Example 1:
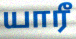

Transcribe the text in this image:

யாரீ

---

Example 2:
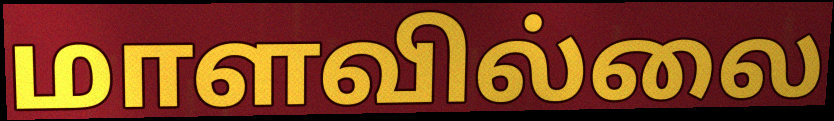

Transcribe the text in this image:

மாளவில்லை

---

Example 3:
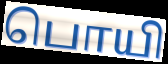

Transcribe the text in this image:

பொயி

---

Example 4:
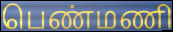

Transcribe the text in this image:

பெண்மணி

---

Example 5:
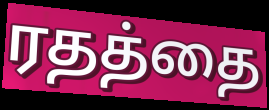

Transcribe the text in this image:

ரதத்தை